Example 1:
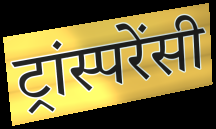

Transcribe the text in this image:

ट्रांस्परेंसी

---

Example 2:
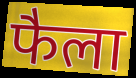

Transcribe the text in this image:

फैला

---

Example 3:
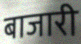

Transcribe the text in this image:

बाजारी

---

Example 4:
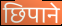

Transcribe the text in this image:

छिपाने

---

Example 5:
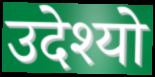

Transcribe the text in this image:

उदेश्यो